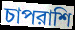
চাপরাশি